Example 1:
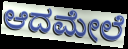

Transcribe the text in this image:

ಆದಮೇಲೆ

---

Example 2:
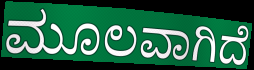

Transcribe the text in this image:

ಮೂಲವಾಗಿದೆ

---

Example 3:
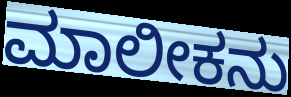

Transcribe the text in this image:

ಮಾಲೀಕನು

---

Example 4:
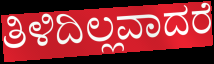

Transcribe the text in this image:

ತಿಳಿದಿಲ್ಲವಾದರೆ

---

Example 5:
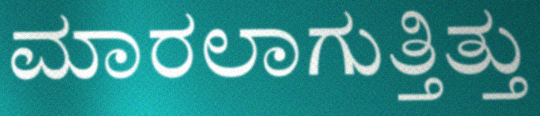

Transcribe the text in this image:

ಮಾರಲಾಗುತ್ತಿತ್ತು